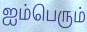
ஐம்பெரும்